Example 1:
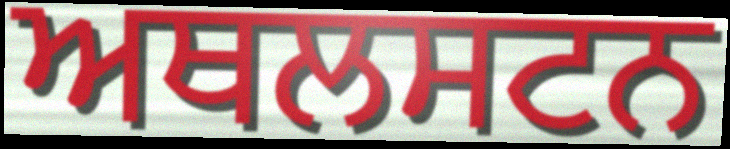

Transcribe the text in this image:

ਅਥਲਸਟਨ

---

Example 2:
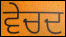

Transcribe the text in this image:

ਵੇਚਦ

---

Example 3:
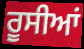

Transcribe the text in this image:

ਰੂਸੀਆਂ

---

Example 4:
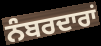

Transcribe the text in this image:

ਨੰਬਰਦਾਰਾਂ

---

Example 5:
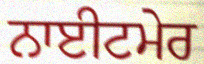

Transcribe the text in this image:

ਨਾਈਟਮੇਰ